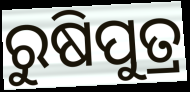
ରୁଷିପୁତ୍ର